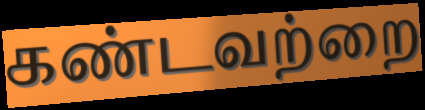
கண்டவற்றை